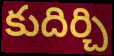
కుదిర్చి